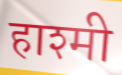
हाश्मी